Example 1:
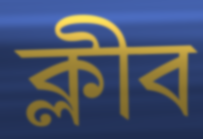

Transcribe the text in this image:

ক্লীব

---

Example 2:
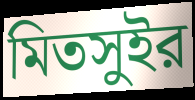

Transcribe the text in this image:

মিতসুইর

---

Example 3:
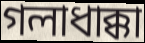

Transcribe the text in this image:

গলাধাক্কা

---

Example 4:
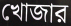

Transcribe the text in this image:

খোজার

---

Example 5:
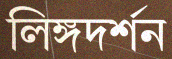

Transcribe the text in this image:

লিঙ্গদর্শন